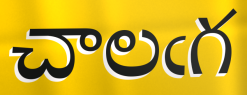
చాలఁగ